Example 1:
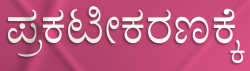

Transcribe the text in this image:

ಪ್ರಕಟೀಕರಣಕ್ಕೆ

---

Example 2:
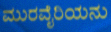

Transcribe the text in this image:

ಮುರವೈರಿಯನು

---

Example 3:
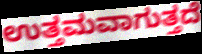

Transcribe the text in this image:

ಉತ್ತಮವಾಗುತ್ತದೆ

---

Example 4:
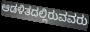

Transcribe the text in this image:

ಆಡಳಿತದಲ್ಲಿರುವವರು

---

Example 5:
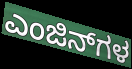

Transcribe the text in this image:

ಎಂಜಿನ್‌ಗಳ